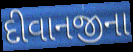
દીવાનજીના